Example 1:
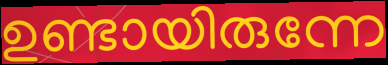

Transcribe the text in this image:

ഉണ്ടായിരുന്നേ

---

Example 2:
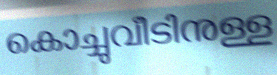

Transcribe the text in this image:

കൊച്ചുവീടിനുള്ള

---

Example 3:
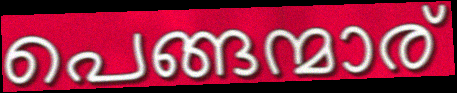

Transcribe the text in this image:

പെങ്ങന്മാര്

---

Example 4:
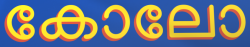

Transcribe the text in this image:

കോലോ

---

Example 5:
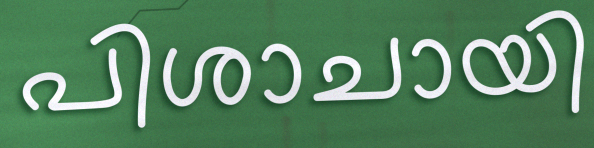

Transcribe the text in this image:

പിശാചായി